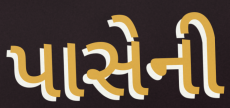
પાસેની